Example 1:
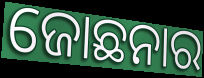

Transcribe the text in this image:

ଜୋଛନାର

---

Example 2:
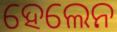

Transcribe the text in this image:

ହେଲେନ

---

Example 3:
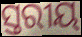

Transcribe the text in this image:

ସ୍ତରୀୟ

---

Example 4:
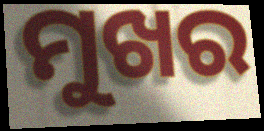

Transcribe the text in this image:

ମୁଖର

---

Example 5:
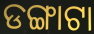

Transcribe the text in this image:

ଡଙ୍ଗାଟା